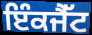
ਇੰਕਜੈੱਟ